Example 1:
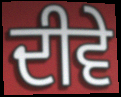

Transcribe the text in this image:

ਦੀਵੇ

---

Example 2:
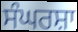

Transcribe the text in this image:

ਸੰਘਰਸ਼ਾ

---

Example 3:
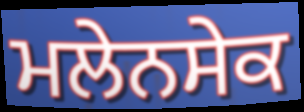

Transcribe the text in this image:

ਮਲੇਨਸੇਕ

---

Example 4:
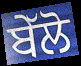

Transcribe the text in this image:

ਬੇੱਲੋ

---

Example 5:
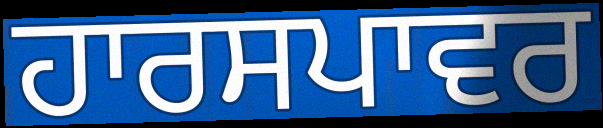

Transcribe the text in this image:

ਹਾਰਸਪਾਵਰ